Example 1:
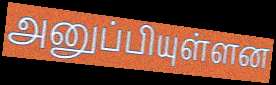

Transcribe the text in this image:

அனுப்பியுள்ளன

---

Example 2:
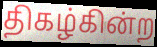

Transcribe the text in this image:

திகழ்கின்ற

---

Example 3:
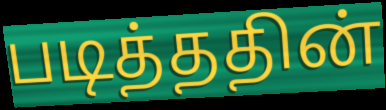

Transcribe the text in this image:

படித்ததின்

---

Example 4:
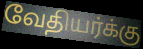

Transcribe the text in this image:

வேதியர்க்கு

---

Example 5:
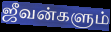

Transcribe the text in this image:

ஜீவன்களும்